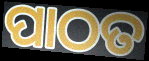
ପାଠତ